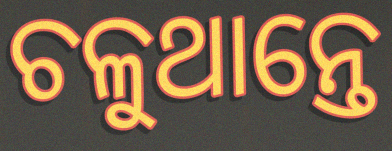
ଚଳୁଥାନ୍ତେ